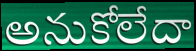
అనుకోలేదా